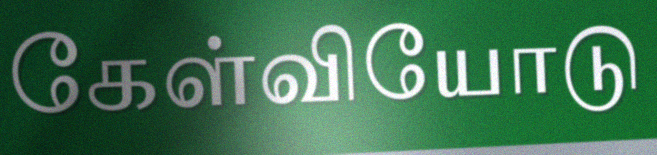
கேள்வியோடு